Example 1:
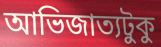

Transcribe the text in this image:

আভিজাত্যটুকু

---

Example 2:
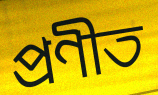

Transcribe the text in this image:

প্রণীত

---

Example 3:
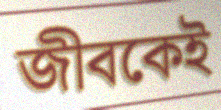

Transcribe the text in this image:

জীবকেই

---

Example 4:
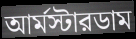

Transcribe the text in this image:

আর্মস্টারডাম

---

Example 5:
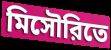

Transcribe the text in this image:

মিসৌরিতে